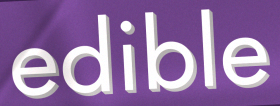
edible